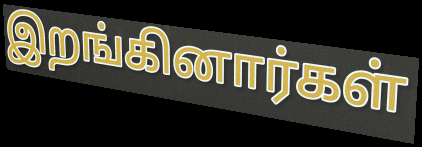
இறங்கினார்கள்